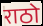
राठो